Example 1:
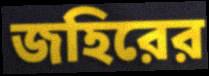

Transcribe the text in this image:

জহিরের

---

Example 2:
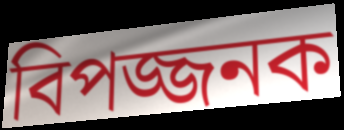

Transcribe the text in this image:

বিপজ্জনক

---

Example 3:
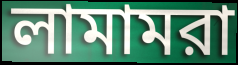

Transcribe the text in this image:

লামামরা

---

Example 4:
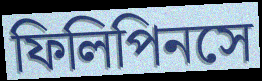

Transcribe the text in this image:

ফিলিপিনসে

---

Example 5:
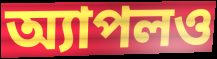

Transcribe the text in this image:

অ্যাপলও